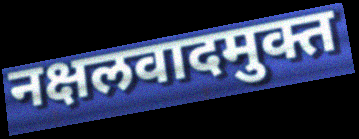
नक्षलवादमुक्त